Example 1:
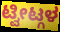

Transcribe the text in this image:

ಟ್ವೀಟ್ಗಳ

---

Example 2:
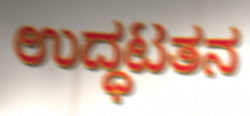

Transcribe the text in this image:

ಉದ್ಧಟತನ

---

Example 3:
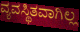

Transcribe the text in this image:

ವ್ಯವಸ್ಥಿತವಾಗಿಲ್ಲ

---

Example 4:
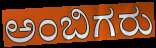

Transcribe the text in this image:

ಅಂಬಿಗರು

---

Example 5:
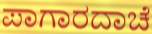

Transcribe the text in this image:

ಪಾಗಾರದಾಚೆ